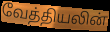
வேத்தியலின்